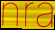
nra